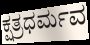
ಕ್ಷತ್ರಧರ್ಮವ